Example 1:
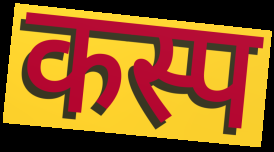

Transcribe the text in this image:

कस्प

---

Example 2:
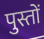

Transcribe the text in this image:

पुस्तों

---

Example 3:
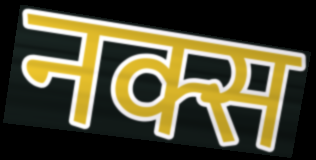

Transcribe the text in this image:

नक्स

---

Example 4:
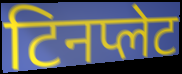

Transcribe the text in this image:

टिनप्लेट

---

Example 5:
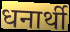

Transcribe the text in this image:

धनार्थी